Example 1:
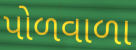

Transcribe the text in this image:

પોળવાળા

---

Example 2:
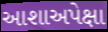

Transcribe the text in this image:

આશાઅપેક્ષા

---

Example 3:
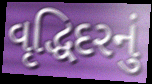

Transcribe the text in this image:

વૃદ્ધિદરનું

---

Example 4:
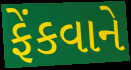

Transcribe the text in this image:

ફેંકવાને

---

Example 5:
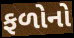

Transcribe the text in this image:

ફળોનો